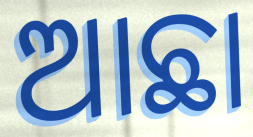
ଆଛା